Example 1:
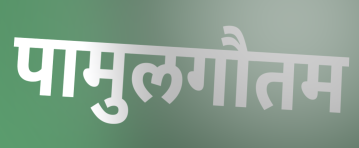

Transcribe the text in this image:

पामुलगौतम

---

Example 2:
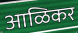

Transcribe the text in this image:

आळिकर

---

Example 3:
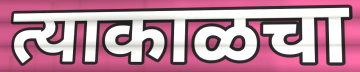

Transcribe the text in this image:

त्याकाळचा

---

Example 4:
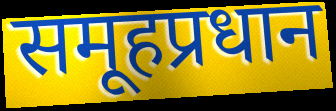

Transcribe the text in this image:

समूहप्रधान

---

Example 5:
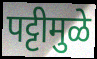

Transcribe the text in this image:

पट्टीमुळे